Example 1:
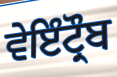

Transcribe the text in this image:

ਵੇਇੰਟ੍ਰੌਬ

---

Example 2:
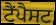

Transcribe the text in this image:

ਟੈਂਪੈਸਟ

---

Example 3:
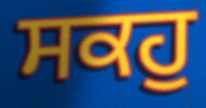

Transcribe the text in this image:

ਸਕਹੁ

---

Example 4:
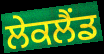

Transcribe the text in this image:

ਲੇਕਲੈਂਡ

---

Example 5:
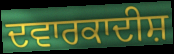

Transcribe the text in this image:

ਦਵਾਰਕਾਦੀਸ਼